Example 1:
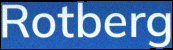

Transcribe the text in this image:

Rotberg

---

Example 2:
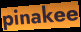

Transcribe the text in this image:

pinakee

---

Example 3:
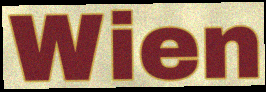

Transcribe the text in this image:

Wien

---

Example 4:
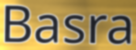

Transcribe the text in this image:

Basra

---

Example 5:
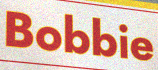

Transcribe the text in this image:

Bobbie